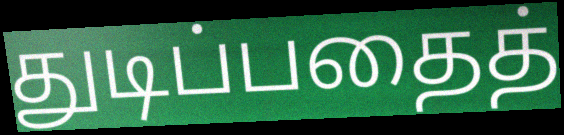
துடிப்பதைத்